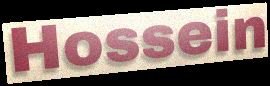
Hossein